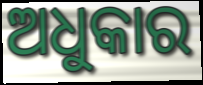
ଅଧୁକାର